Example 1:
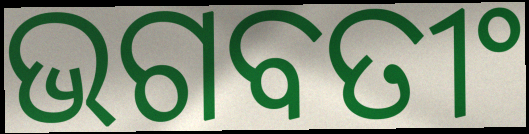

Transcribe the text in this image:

ଭଗବତୀଂ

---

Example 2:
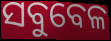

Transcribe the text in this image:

ସବୁବେଳ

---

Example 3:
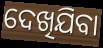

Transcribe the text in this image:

ଦେଖିଯିବା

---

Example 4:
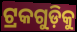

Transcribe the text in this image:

ଟ୍ରକଗୁଡ଼ିକୁ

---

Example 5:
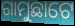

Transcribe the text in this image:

ଗାମୁଛାଟେ